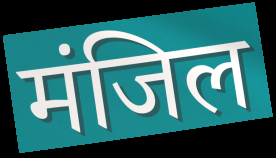
मंजिल